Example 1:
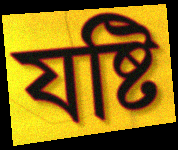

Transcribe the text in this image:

যষ্টি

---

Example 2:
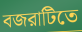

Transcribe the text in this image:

বজরাটিতে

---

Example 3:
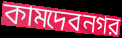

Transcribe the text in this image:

কামদেবনগর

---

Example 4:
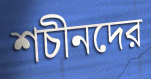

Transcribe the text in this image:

শচীনদের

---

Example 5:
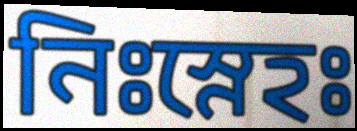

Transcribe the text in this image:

নিঃস্নেহঃ